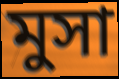
মুসা